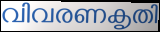
വിവരണകൃതി